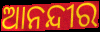
ଆନନ୍ଦୀର